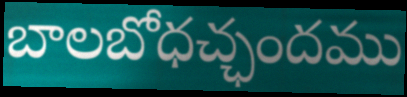
బాలబోధచ్ఛందము